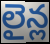
లైన్ల